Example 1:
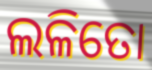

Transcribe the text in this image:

ଲଳିତୋ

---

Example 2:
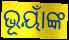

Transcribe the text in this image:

ଭୂୟାଁଙ୍କ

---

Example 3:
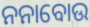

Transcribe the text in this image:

ନନାବୋଉ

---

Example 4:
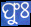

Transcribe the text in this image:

ଫୁଃ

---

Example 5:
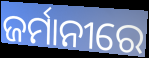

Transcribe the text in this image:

ଜର୍ମାନୀରେ